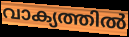
വാക്യത്തിൽ